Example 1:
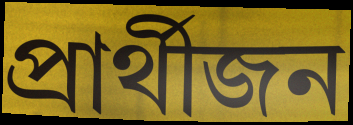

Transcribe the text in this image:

প্ৰাৰ্থীজন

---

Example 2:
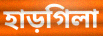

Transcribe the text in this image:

হাড়গিলা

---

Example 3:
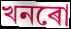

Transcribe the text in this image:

খনৰো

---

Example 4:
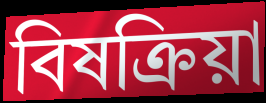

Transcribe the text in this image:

বিষক্ৰিয়া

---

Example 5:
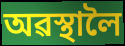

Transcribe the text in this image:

অৱস্থালৈ